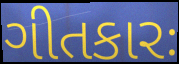
ગીતકારઃ